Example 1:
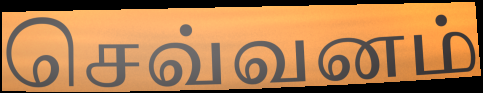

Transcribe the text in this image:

செவ்வனம்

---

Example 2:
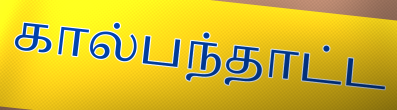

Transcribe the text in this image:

கால்பந்தாட்ட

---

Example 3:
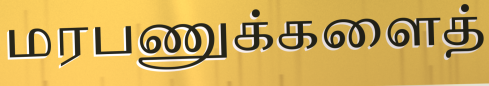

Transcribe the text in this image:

மரபணுக்களைத்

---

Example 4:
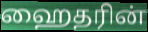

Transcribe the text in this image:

ஹைதரின்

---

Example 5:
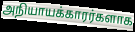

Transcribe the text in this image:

அநியாயக்காரர்களாக